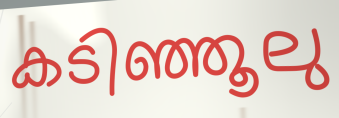
കടിഞ്ഞൂലു